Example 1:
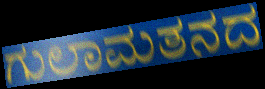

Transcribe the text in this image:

ಗುಲಾಮತನದ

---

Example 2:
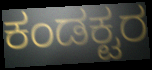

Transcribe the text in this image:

ಕಂಡಕ್ಟರ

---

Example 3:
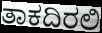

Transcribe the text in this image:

ತಾಕದಿರಲಿ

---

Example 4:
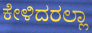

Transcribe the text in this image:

ಕೇಳಿದರಲ್ಲಾ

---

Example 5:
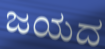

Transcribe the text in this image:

ಜಯದ